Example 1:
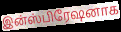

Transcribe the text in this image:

இன்ஸ்பிரேஷனாக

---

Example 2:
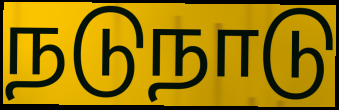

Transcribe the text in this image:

நடுநாடு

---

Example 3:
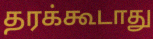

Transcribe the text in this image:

தரக்கூடாது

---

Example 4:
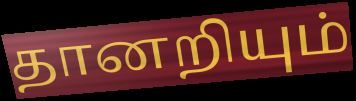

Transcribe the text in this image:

தானறியும்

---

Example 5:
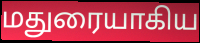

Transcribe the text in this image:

மதுரையாகிய